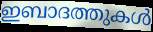
ഇബാദത്തുകൾ